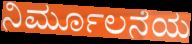
ನಿರ್ಮೂಲನೆಯ